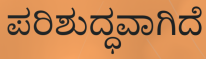
ಪರಿಶುದ್ಧವಾಗಿದೆ